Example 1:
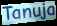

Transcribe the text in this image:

Tanuja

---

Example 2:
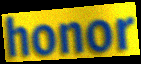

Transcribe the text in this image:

honor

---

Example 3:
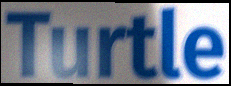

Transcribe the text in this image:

Turtle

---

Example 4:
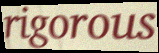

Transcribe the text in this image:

rigorous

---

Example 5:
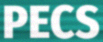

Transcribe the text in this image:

PECS